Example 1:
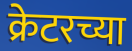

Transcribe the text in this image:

क्रेटरच्या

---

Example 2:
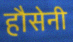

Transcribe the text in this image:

हौसेनी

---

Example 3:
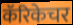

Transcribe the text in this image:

कॅरिकेचर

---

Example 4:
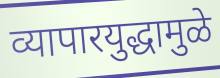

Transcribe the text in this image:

व्यापारयुद्धामुळे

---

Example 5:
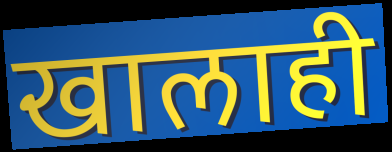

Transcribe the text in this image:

खालाही